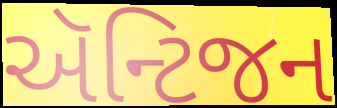
ઍન્ટિજન